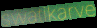
swatikarve